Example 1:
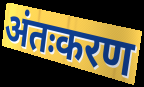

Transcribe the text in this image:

अंतःकरण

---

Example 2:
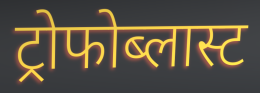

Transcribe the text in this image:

ट्रोफोब्लास्ट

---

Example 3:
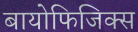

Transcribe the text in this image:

बायोफिजिक्स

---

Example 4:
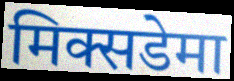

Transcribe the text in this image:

मिक्सडेमा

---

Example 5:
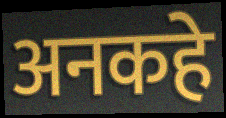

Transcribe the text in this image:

अनकहे